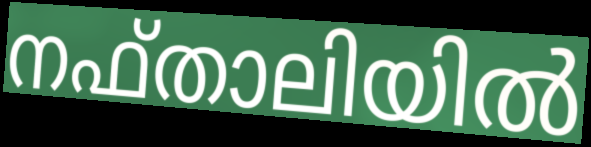
നഫ്താലിയിൽ